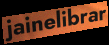
jainelibrar